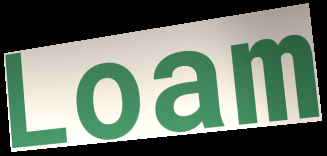
Loam